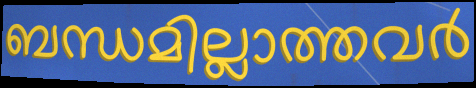
ബന്ധമില്ലാത്തവർ